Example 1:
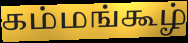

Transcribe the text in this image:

கம்மங்கூழ்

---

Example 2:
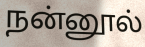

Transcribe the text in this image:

நன்னூல்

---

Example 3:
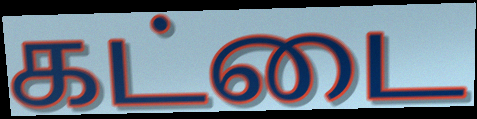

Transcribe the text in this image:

கட்டை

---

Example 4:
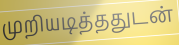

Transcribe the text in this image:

முறியடித்ததுடன்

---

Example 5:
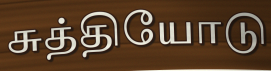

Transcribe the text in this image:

சுத்தியோடு